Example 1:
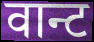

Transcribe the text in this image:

वान्ट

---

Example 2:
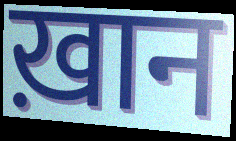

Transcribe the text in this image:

ख़ान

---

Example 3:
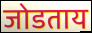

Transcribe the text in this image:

जोडताय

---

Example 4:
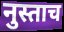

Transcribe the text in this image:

नुस्ताच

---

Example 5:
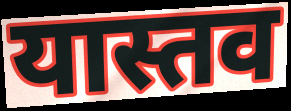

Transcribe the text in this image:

यास्तव